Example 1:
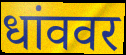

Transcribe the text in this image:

धांववर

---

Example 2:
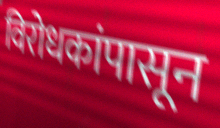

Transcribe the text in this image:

विरोधकांपासून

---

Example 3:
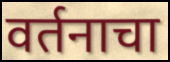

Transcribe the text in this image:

वर्तनाचा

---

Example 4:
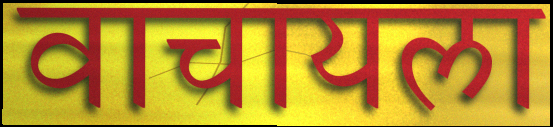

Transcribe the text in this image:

वाचायला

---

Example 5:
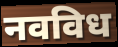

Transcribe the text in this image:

नवविध